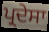
ਪ੍ਰਦੇਸਾ